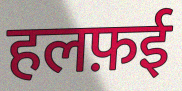
हलफ़ई